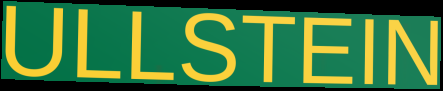
ULLSTEIN